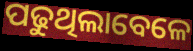
ପଢୁଥିଲାବେଳେ